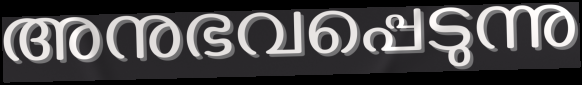
അനുഭവപ്പെടുന്നു